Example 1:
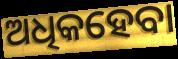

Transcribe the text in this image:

ଅଧିକହେବା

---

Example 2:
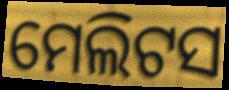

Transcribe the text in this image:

ମେଲିଟସ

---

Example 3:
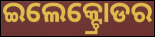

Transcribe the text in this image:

ଇଲେକ୍ଟ୍ରୋଡର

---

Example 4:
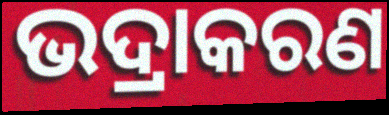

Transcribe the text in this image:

ଭଦ୍ରାକରଣ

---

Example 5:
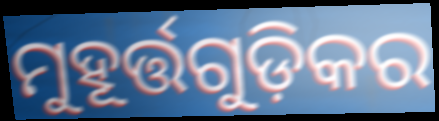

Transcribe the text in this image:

ମୁହୂର୍ତ୍ତଗୁଡ଼ିକର